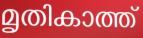
മൃതികാത്ത്